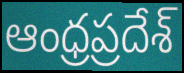
ఆంధ్రప్రదేశ్